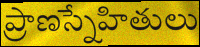
ప్రాణస్నేహితులు